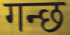
गन्छ